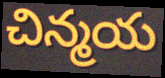
చిన్మయ